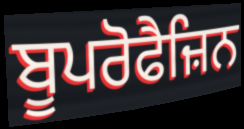
ਬੂਪਰੋਫੈਜ਼ਿਨ